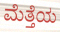
ಮೆತ್ತೆಯ